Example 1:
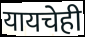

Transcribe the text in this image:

यायचेही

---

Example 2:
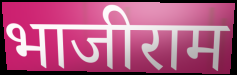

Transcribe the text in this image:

भाजीराम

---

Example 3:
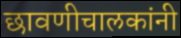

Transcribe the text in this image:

छावणीचालकांनी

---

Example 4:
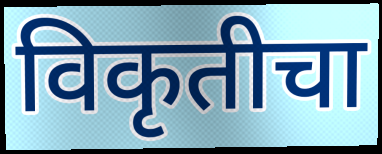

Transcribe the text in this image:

विकृतीचा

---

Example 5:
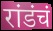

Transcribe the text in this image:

रांडंचं